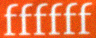
ffffff